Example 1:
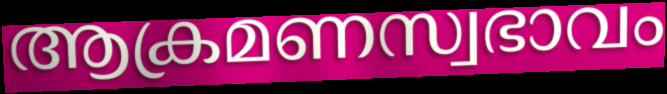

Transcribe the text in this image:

ആക്രമണസ്വഭാവം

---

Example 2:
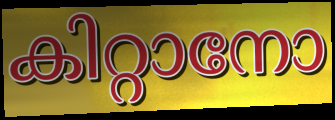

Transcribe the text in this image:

കിറ്റാനോ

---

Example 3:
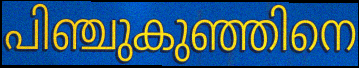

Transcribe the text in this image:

പിഞ്ചുകുഞ്ഞിനെ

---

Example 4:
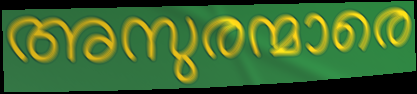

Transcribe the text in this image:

അസുരന്മാരെ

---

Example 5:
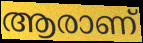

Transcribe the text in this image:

ആരാണ്